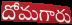
దోమగారు